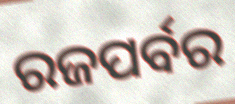
ରଜପର୍ବର